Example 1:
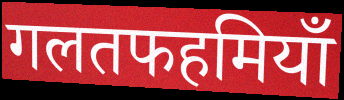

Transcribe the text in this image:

गलतफहमियाँ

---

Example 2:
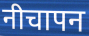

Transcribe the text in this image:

नीचापन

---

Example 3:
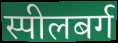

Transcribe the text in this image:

स्पीलबर्ग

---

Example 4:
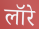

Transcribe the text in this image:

लॉरे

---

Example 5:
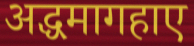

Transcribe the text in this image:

अद्धमागहाए